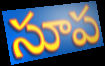
సూప